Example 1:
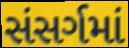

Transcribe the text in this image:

સંસર્ગમાં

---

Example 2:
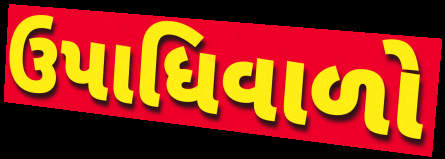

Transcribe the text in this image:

ઉપાધિવાળો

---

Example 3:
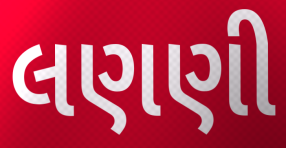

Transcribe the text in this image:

લણણી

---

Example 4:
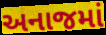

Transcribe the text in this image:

અનાજમાં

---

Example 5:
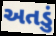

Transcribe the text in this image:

અતડું